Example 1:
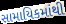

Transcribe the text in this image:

સામાયિકમાંથી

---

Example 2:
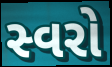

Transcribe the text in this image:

સ્વરો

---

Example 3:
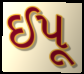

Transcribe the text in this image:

ઈપૂ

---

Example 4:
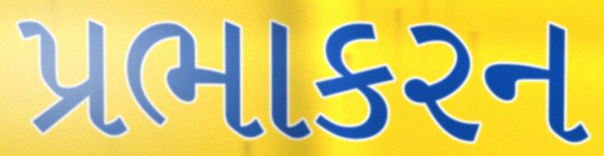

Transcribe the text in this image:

પ્રભાકરન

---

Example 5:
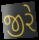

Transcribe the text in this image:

જીરે